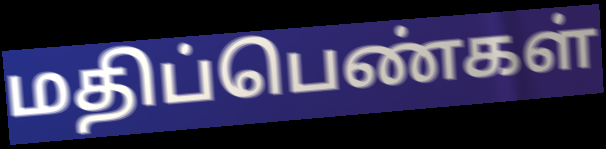
மதிப்பெண்கள்